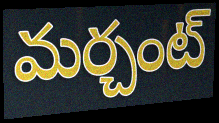
మర్చంట్